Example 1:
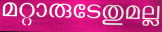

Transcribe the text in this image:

മറ്റാരുടേതുമല്ല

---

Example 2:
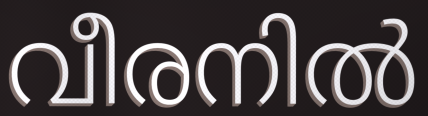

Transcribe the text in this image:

വീരനിൽ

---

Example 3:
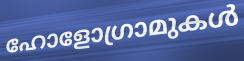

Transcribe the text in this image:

ഹോളോഗ്രാമുകൾ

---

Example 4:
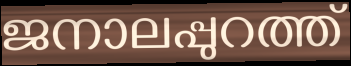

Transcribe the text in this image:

ജനാലപ്പുറത്ത്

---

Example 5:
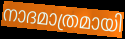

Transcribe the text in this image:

നാദമാത്രമായി